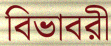
বিভাবরী